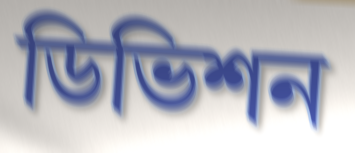
ডিভিশন